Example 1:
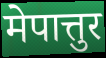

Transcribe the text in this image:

मेपात्तुर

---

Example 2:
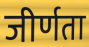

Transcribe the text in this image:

जीर्णता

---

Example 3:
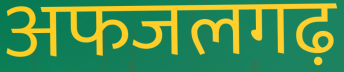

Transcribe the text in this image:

अफजलगढ़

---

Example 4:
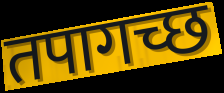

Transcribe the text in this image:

तपागच्छ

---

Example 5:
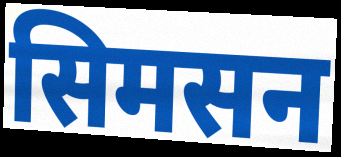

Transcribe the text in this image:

सिमसन